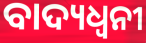
ବାଦ୍ୟଧ୍ୱନୀ